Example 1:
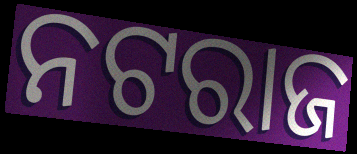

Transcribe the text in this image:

ନଟରାଜ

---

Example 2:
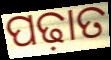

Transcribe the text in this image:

ପଢ଼ାତ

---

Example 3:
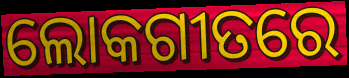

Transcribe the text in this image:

ଲୋକଗୀତରେ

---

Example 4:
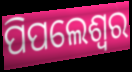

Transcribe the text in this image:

ପିପଲେଶ୍ୱର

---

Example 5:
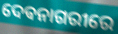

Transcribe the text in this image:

ଦେଵନାଗରୀରେ